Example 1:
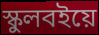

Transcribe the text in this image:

স্কুলবইয়ে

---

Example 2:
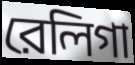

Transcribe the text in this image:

রেলিগা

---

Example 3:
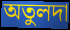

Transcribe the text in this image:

অতুলদা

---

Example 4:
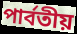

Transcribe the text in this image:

পার্বতীয়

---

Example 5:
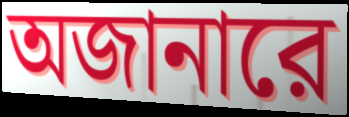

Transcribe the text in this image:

অজানারে